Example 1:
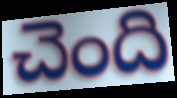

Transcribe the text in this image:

చెంది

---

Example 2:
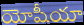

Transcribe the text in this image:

యోషీయా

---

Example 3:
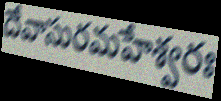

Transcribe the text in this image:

దేవాసురమహేశ్వరః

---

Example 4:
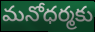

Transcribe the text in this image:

మనోధర్మకు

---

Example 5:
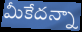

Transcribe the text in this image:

మీకేదన్నా